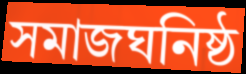
সমাজঘনিষ্ঠ